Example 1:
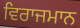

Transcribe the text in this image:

ਵਿਰਾਜਮਾਨ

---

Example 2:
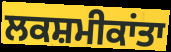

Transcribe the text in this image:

ਲਕਸ਼ਮੀਕਾਂਤਾ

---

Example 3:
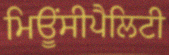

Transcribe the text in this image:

ਮਿਊਂਸੀਪੈਲਿਟੀ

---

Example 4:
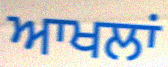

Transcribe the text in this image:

ਆਖਲਾਂ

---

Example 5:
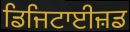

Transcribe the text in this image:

ਡਿਜਿਟਾਈਜ਼ਡ